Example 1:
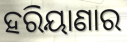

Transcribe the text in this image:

ହରିୟାଣାର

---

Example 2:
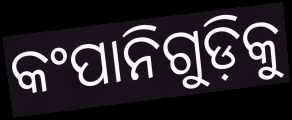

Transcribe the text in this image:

କଂପାନିଗୁଡ଼ିକୁ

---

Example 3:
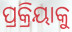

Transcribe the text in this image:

ପ୍ରକ୍ରିୟାକୁ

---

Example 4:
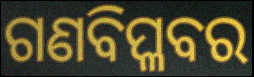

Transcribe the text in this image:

ଗଣବିପ୍ଳବର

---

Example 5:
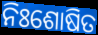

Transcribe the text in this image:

ନିଃଶୋଷିତ